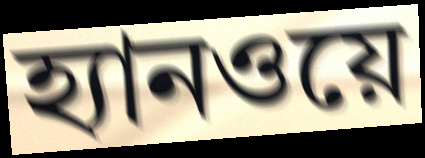
হ্যানওয়ে